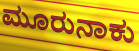
ಮೂರುನಾಕು